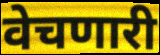
वेचणारी